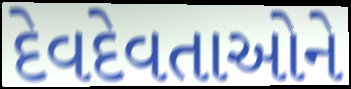
દેવદેવતાઓને